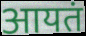
आयतं